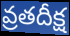
వ్రతదీక్ష